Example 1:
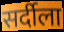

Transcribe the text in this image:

सर्दीला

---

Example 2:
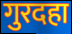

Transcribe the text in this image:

गुरदहा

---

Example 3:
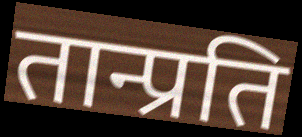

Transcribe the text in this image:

तान्प्रति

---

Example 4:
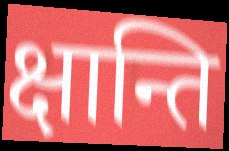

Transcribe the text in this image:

क्षान्ति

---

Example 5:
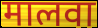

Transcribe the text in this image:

मालवा